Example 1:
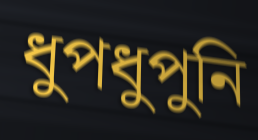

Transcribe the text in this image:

ধুপধুপুনি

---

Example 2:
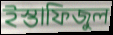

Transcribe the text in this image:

ইস্তাফিজুল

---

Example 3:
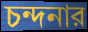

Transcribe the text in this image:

চন্দনার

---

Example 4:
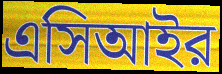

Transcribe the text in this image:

এসিআইর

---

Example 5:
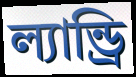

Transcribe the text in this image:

ল্যান্ড্রি